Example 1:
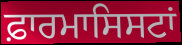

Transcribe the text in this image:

ਫ਼ਾਰਮਾਸਿਸਟਾਂ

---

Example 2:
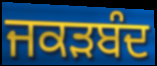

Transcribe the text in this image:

ਜਕੜਬੰਦ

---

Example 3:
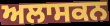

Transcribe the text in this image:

ਅਲਾਸਕਨ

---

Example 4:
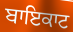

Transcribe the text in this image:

ਬਾਇਕਾਟ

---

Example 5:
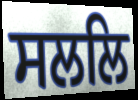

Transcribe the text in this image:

ਸਲਲਿ